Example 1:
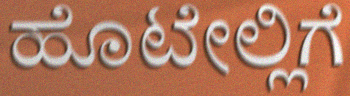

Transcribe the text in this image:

ಹೊಟೇಲ್ಲಿಗೆ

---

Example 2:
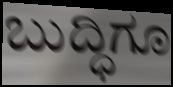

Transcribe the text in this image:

ಬುದ್ಧಿಗೂ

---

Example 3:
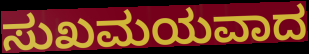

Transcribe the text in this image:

ಸುಖಮಯವಾದ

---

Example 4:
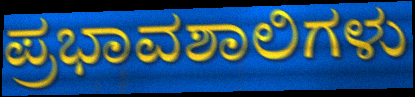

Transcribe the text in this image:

ಪ್ರಭಾವಶಾಲಿಗಳು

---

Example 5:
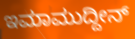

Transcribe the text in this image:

ಇಮಾಮುದ್ದೀನ್